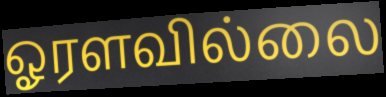
ஓரளவில்லை